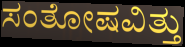
ಸಂತೋಷವಿತ್ತು